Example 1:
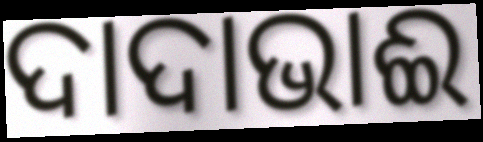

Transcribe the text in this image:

ଦାଦାଭାଈ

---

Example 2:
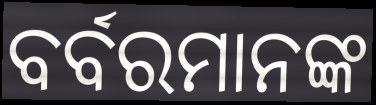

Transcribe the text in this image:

ବର୍ବରମାନଙ୍କ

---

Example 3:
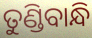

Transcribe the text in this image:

ତୁଣ୍ଡିବାନ୍ଧି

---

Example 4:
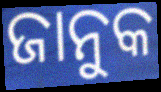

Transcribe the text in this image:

ଜାନୁକ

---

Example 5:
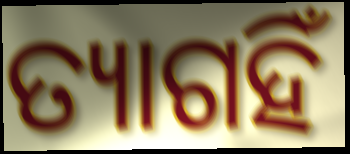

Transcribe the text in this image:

ତ୍ୟାଗହିଁ